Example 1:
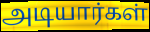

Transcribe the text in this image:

அடியார்கள்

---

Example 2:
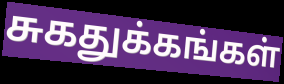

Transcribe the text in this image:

சுகதுக்கங்கள்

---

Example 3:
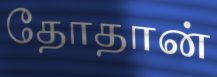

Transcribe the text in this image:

தோதான்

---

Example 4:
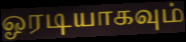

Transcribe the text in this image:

ஓரடியாகவும்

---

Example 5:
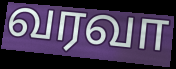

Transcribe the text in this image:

வரவா